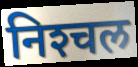
निश्चल